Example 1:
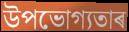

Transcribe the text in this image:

উপভোগ্যতাৰ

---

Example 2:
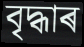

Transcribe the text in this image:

বৃদ্ধাৰ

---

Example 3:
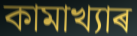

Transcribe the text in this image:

কামাখ্যাৰ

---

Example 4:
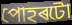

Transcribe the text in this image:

পোহৰটো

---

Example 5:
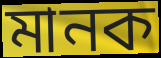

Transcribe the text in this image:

মানক